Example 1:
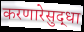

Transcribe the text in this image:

करणारेसुद्धा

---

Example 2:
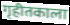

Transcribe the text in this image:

गृहीतकाला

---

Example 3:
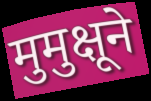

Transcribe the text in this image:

मुमुक्षूने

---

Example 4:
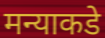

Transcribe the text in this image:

मन्याकडे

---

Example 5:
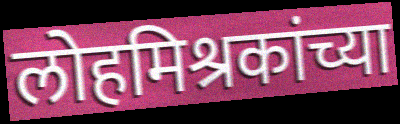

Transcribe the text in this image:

लोहमिश्रकांच्या